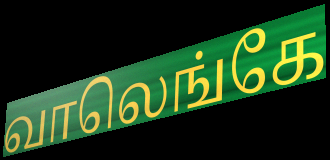
வாலெங்கே